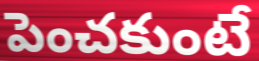
పెంచకుంటే